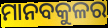
ମାନବକୁଳର